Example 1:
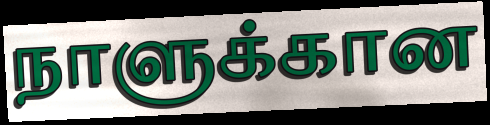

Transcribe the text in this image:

நாளுக்கான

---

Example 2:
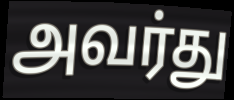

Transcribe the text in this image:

அவர்து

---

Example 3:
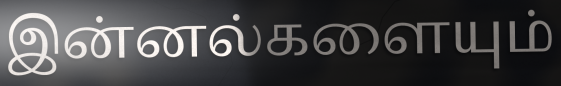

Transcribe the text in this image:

இன்னல்களையும்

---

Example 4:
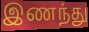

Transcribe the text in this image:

இணந்து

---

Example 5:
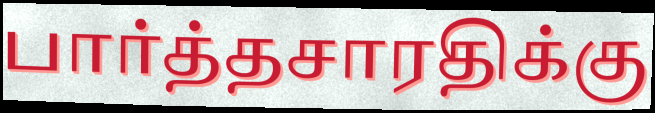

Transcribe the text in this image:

பார்த்தசாரதிக்கு